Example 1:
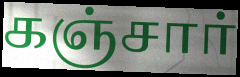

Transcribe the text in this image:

கஞ்சார்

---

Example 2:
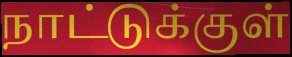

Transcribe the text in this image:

நாட்டுக்குள்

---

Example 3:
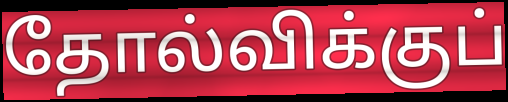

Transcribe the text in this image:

தோல்விக்குப்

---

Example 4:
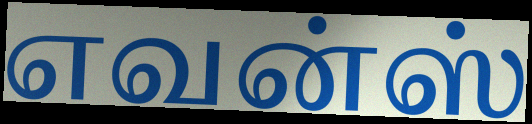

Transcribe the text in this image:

எவன்ஸ்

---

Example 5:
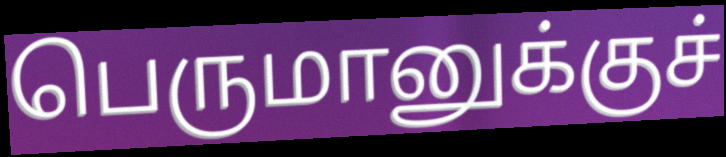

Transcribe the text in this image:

பெருமானுக்குச்